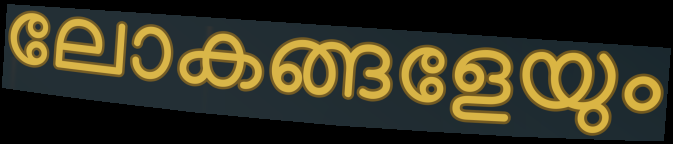
ലോകങ്ങളേയും